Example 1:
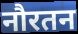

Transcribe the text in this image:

नौरतन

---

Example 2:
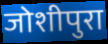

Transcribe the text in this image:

जोशीपुरा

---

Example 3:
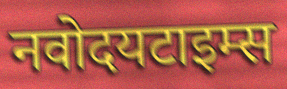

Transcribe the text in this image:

नवोदयटाइम्स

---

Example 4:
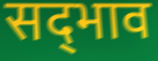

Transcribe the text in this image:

सद्‍भाव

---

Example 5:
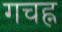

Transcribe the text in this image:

गचह्न